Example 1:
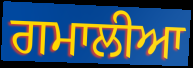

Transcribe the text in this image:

ਗਮਾਲੀਆ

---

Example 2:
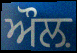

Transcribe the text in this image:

ਔਲ਼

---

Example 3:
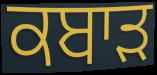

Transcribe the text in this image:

ਕਬਾਡ਼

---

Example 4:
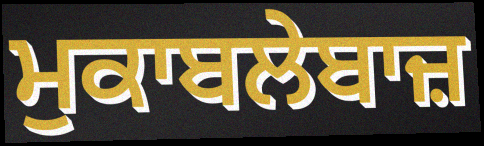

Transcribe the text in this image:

ਮੁਕਾਬਲੇਬਾਜ਼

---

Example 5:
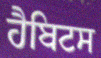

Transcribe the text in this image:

ਹੈਬਿਟਸ